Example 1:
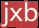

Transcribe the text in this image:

jxb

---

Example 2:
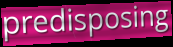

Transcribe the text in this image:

predisposing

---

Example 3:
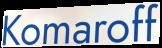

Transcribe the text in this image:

Komaroff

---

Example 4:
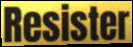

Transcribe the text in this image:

Resister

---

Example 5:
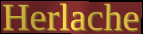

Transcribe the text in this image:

Herlache